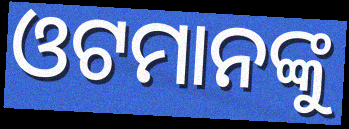
ଓଟମାନଙ୍କୁ